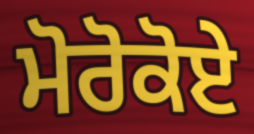
ਮੋਰੋਕੋਏ